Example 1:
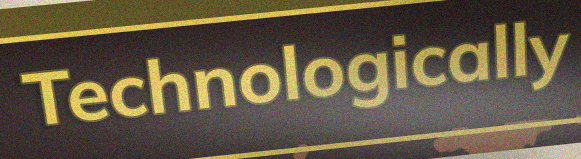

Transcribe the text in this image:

Technologically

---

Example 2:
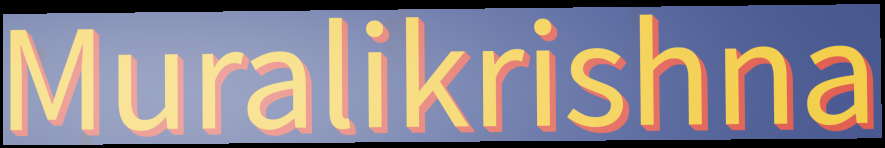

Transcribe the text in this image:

Muralikrishna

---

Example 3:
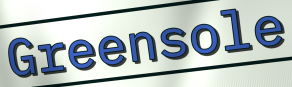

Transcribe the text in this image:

Greensole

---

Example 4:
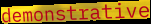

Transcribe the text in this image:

demonstrative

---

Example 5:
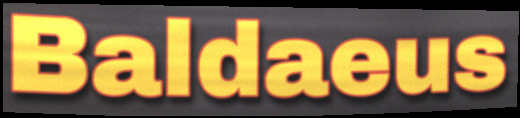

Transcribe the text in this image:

Baldaeus